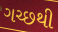
ગચ્છથી